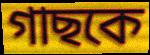
গাছকে